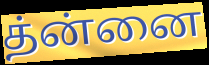
த்ன்னை